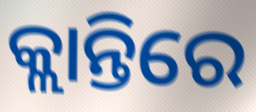
କ୍ଲାନ୍ତିରେ